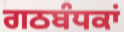
ਗਠਬੰਧਕਾਂ